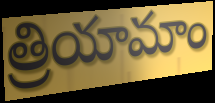
త్రియామాం